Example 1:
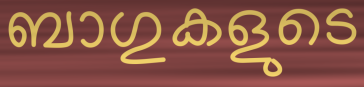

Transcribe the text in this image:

ബാഗുകളുടെ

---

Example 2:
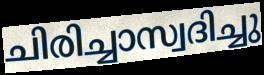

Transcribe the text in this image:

ചിരിച്ചാസ്വദിച്ചു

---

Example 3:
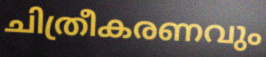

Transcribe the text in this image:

ചിത്രീകരണവും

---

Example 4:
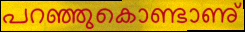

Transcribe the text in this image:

പറഞ്ഞുകൊണ്ടാണു്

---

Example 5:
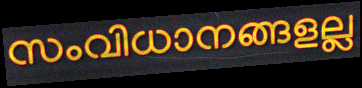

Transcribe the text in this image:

സംവിധാനങ്ങളല്ല